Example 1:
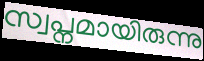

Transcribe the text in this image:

സ്വപ്നമായിരുന്നു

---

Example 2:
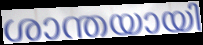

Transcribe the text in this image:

ശാന്തയായി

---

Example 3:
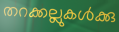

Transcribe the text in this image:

തറക്കല്ലുകൾക്കു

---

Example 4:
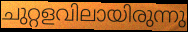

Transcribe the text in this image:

ചുറ്റളവിലായിരുന്നു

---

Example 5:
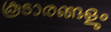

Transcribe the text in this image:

കൂടാരങ്ങളും